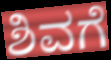
ಶಿವಗೆ